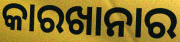
କାରଖାନାର